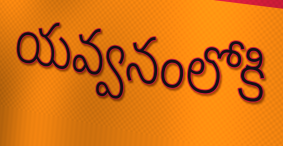
యవ్వనంలోకి